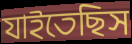
যাইতেছিস